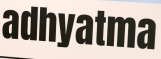
adhyatma